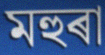
মহুৰা